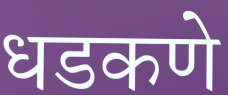
धडकणे